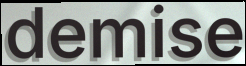
demise